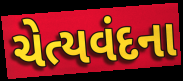
ચેત્યવંદના